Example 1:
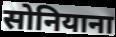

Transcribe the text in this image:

सोनियाना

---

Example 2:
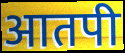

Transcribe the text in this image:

आतपी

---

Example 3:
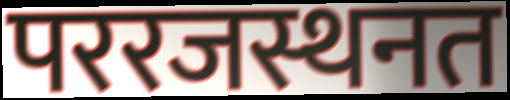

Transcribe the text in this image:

पररजस्थनत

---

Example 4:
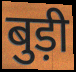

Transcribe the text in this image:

बुड़ी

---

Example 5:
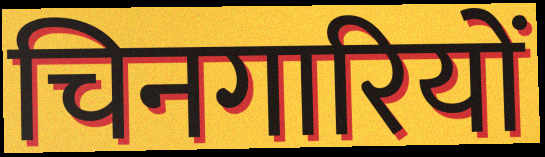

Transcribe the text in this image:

चिनगारियों